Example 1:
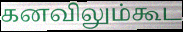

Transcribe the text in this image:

கனவிலும்கூட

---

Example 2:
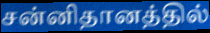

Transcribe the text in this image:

சன்னிதானத்தில்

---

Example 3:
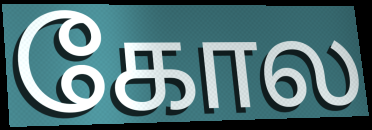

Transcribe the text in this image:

கோல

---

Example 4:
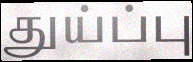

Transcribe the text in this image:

துய்ப்பு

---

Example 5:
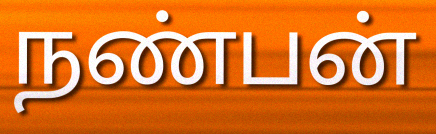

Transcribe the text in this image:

நண்பன்